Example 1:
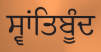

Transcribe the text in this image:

ਸ੍ਵਾਂਤਿਬੂੰਦ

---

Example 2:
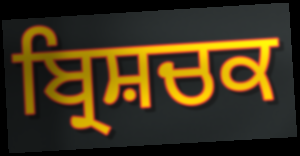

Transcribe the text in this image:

ਬ੍ਰਿਸ਼ਚਕ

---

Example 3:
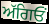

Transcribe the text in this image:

ਅੱਗਿਓਂ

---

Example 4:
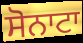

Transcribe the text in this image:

ਸੋਨਾਟਾ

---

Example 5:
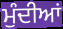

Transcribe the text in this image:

ਮੁੰਦੀਆਂ